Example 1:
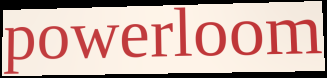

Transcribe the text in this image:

powerloom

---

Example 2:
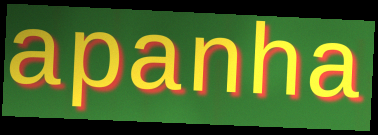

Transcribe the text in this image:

apanha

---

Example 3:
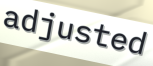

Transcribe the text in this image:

adjusted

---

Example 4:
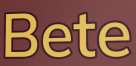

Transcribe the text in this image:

Bete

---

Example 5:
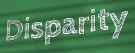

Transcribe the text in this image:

Disparity